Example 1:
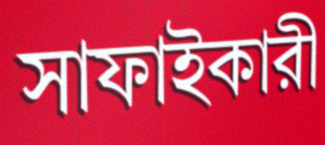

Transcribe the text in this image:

সাফাইকারী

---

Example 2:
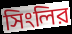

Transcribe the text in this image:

সিংলির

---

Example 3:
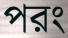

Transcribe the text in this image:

পরং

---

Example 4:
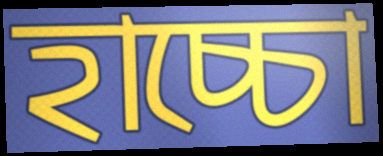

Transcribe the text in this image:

হাচ্চো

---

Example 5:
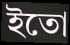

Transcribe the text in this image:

ইতো